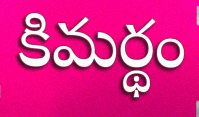
కిమర్థం